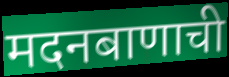
मदनबाणाची